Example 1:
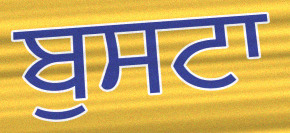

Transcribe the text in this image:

ਬੁਸਟਾ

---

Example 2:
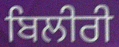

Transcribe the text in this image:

ਬਿਲੀਰੀ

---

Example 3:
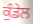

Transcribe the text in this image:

ਕੁੰਡੇਲ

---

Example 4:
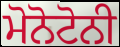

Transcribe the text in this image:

ਮੋਨੋਟੋਨੀ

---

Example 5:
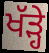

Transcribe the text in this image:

ਖੱੜ੍ਹੇ